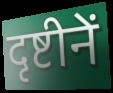
दृष्टीनें